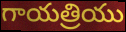
గాయత్రియు